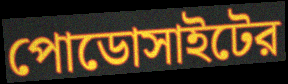
পোডোসাইটের